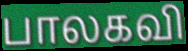
பாலகவி